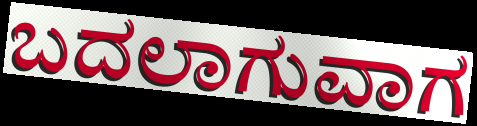
ಬದಲಾಗುವಾಗ